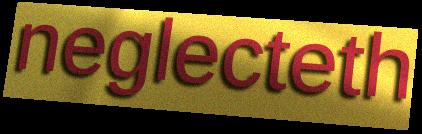
neglecteth